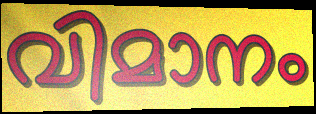
വിമാനം